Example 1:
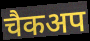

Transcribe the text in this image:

चैकअप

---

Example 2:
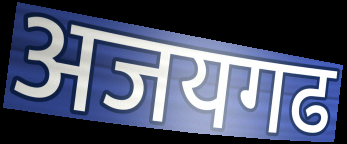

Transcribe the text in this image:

अजयगढ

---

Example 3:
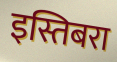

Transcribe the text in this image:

इस्तिबरा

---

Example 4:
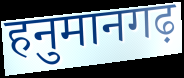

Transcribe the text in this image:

हनुमानगढ़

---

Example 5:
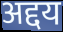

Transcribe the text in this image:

अद्दय